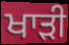
ਖਾੜੀ